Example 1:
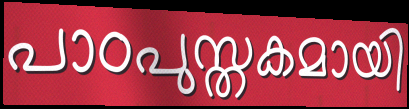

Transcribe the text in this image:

പാഠപുസ്തകമായി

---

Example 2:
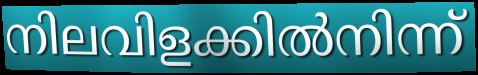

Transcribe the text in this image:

നിലവിളക്കിൽനിന്ന്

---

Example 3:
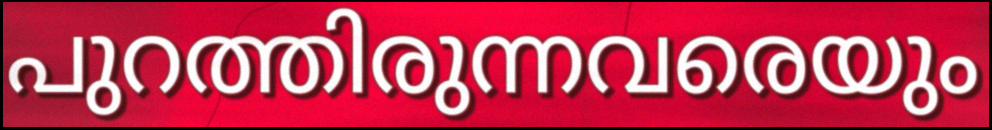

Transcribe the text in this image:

പുറത്തിരുന്നവരെയും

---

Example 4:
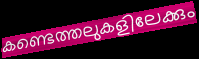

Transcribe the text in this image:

കണ്ടെത്തലുകളിലേക്കും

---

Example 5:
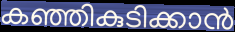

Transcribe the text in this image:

കഞ്ഞികുടിക്കാൻ